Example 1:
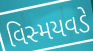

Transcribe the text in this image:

વિસ્મયવડે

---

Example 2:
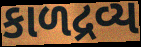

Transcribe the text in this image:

કાળદ્રવ્ય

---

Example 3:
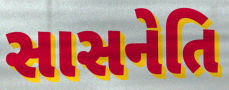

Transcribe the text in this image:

સાસનેતિ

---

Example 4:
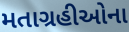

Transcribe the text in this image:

મતાગ્રહીઓના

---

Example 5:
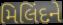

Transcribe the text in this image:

મિલિંદને